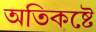
অতিকষ্টে